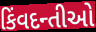
કિંવદન્તીઓ